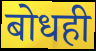
बोधही